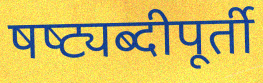
षष्ट्यब्दीपूर्ती